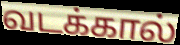
வடக்கால்